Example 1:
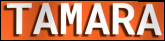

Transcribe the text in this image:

TAMARA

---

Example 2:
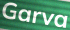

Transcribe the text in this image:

Garva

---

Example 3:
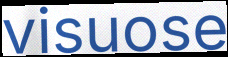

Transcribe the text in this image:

visuose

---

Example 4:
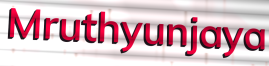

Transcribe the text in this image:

Mruthyunjaya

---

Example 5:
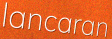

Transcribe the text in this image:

lancaran